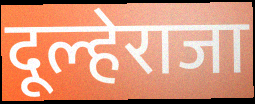
दूल्हेराजा